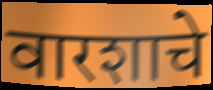
वारशाचे